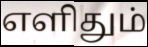
எளிதும்